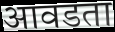
आवडता